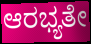
ಆರಭ್ಯತೇ